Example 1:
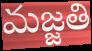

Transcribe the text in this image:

మజ్జతి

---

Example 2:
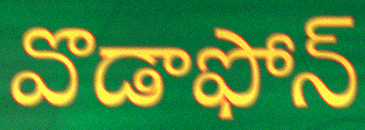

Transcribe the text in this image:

వొడాఫోన్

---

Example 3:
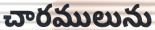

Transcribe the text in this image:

చారములును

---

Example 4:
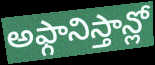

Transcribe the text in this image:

అఫ్గానిస్తాన్లో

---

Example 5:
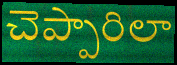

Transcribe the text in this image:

చెప్పారిలా